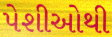
પેશીઓથી